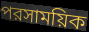
পরসাময়িক